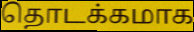
தொடக்கமாக